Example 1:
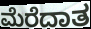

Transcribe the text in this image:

ಮೆರೆದಾತ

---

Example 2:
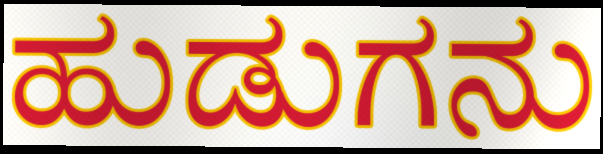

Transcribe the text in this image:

ಹುಡುಗನು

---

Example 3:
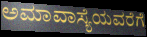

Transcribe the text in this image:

ಅಮಾವಾಸ್ಯೆಯವರೆಗೆ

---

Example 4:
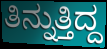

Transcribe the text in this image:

ತಿನ್ನುತ್ತಿದ್ದ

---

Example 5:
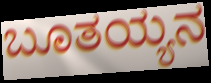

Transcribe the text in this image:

ಬೂತಯ್ಯನ